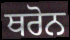
ਥਰੋਨ